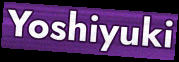
Yoshiyuki